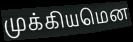
முக்கியமென